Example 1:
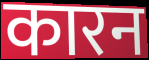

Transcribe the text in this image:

कारन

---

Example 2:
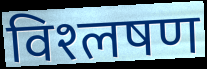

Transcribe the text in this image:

विश्लषण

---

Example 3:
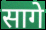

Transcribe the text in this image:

सागे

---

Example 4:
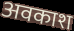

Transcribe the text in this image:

अवकाश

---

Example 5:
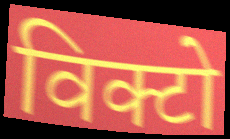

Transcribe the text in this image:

विक्टो